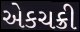
એકચક્રી